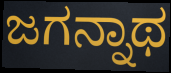
ಜಗನ್ನಾಥ